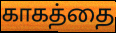
காகத்தை